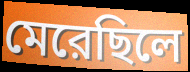
মেরেছিলে